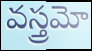
వస్త్రమో